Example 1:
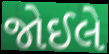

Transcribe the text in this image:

જોઈલે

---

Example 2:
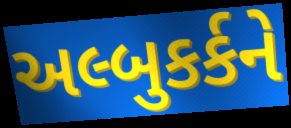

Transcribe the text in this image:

અલ્બુકર્કને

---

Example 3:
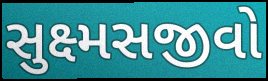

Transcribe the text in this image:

સુક્ષ્મસજીવો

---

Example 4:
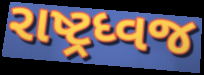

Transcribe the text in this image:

રાષ્ટ્રધ્વજ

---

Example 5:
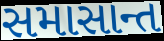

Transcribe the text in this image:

સમાસાન્ત